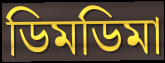
ডিমডিমা